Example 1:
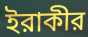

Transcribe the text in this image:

ইরাকীর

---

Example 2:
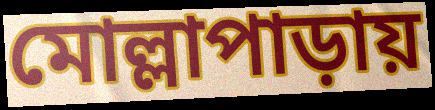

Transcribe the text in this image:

মোল্লাপাড়ায়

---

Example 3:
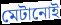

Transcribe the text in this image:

মেটানোই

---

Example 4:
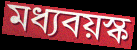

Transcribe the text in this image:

মধ্যবয়স্ক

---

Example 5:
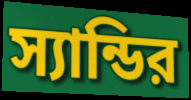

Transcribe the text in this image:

স্যান্ডির